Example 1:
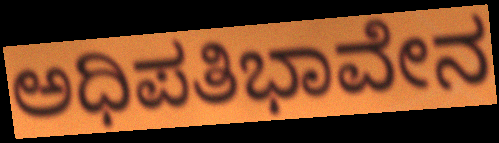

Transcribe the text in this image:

ಅಧಿಪತಿಭಾವೇನ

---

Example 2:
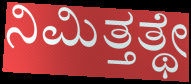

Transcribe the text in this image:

ನಿಮಿತ್ತತ್ಥೇ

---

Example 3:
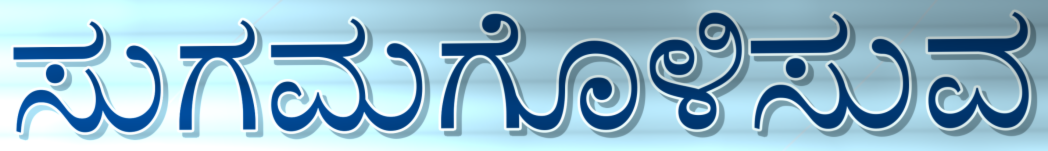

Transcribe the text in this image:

ಸುಗಮಗೊಳಿಸುವ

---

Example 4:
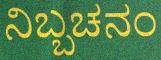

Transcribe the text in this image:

ನಿಬ್ಬಚನಂ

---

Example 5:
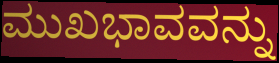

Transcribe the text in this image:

ಮುಖಭಾವವನ್ನು